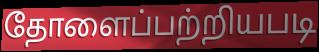
தோளைப்பற்றியபடி